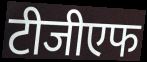
टीजीएफ